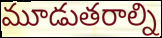
మూడుతరాల్ని